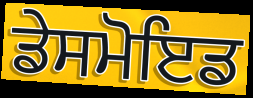
ਡੇਸਮੋਇਡ